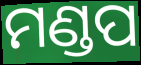
ମଣ୍ଡପ